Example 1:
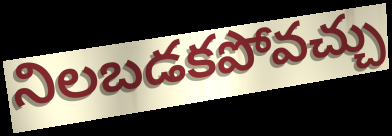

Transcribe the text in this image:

నిలబడకపోవచ్చు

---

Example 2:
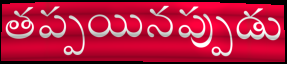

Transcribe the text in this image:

తప్పయినప్పుడు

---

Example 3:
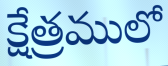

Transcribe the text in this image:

క్షేత్రములో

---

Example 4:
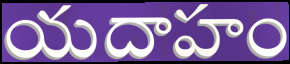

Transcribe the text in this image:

యదాహం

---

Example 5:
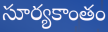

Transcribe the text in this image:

సూర్యకాంతం